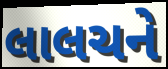
લાલચને